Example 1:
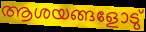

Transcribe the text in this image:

ആശയങ്ങളോടു്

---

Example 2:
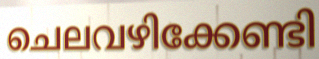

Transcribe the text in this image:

ചെലവഴിക്കേണ്ടി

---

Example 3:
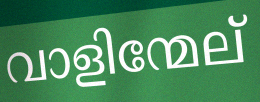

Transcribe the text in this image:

വാളിന്മേല്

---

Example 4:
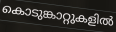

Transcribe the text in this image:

കൊടുങ്കാറ്റുകളിൽ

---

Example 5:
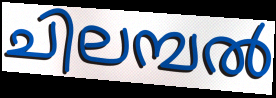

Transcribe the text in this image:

ചിലമ്പൽ